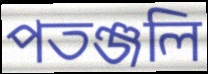
পতঞ্জলি